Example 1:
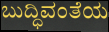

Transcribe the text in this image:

ಬುದ್ಧಿವಂತೆಯ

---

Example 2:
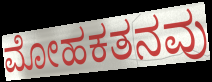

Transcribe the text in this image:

ಮೋಹಕತನವು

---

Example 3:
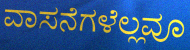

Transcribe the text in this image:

ವಾಸನೆಗಳೆಲ್ಲವೂ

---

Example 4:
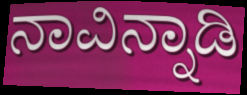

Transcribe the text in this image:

ನಾವಿನ್ನಾಡಿ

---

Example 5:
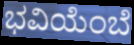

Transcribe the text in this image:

ಭವಿಯೆಂಬೆ